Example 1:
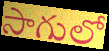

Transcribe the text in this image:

సాగులో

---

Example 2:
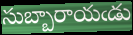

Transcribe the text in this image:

సుబ్బారాయఁడు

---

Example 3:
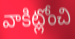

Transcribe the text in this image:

వాకిట్లోంచి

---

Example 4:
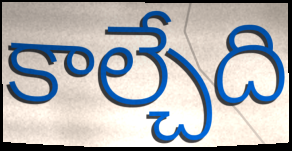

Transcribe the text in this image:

కాల్చేది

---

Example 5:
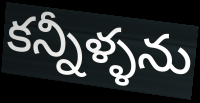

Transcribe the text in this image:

కన్నీళ్ళను